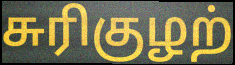
சுரிகுழற்